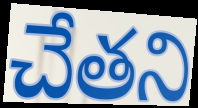
చేతని